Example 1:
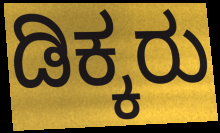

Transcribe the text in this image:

ಡಿಕ್ಕರು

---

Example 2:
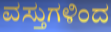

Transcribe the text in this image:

ವಸ್ತುಗಳಿಂದ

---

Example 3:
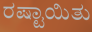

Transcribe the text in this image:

ರಷ್ಟಾಯಿತು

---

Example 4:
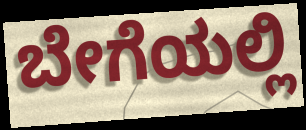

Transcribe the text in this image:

ಬೇಗೆಯಲ್ಲಿ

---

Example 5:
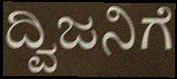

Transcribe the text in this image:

ದ್ವಿಜನಿಗೆ